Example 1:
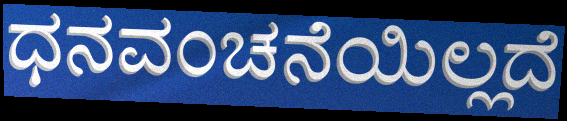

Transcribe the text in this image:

ಧನವಂಚನೆಯಿಲ್ಲದೆ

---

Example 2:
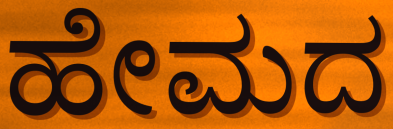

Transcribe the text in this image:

ಹೇಮದ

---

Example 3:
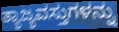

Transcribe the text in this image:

ತ್ಯಾಜ್ಯವಸ್ತುಗಳನ್ನು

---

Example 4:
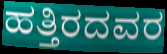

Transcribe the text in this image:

ಹತ್ತಿರದವರ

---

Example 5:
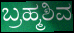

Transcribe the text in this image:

ಬ್ರಹ್ಮಶಿವ